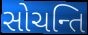
સોચન્તિ